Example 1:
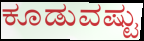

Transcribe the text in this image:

ಕೂಡುವಷ್ಟು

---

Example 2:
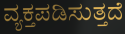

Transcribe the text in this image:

ವ್ಯಕ್ತಪಡಿಸುತ್ತದೆ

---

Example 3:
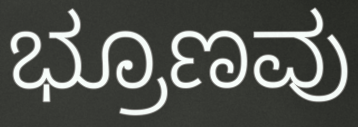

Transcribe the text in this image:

ಭ್ರೂಣವು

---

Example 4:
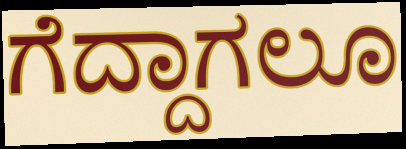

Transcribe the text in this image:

ಗೆದ್ದಾಗಲೂ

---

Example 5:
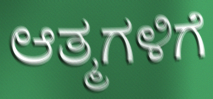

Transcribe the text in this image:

ಆತ್ಮಗಳಿಗೆ